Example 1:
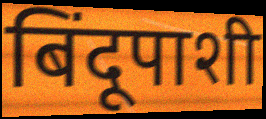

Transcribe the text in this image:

बिंदूपाशी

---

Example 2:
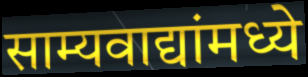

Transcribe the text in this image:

साम्यवाद्यांमध्ये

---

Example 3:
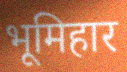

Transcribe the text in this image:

भूमिहार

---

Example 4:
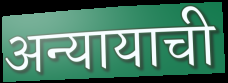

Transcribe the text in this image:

अन्यायाची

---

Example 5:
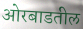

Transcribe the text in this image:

ओरबाडतील